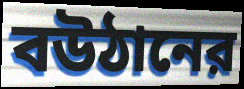
বউঠানের